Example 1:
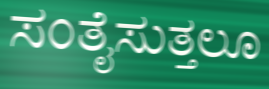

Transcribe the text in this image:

ಸಂತೈಸುತ್ತಲೂ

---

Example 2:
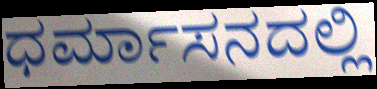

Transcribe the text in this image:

ಧರ್ಮಾಸನದಲ್ಲಿ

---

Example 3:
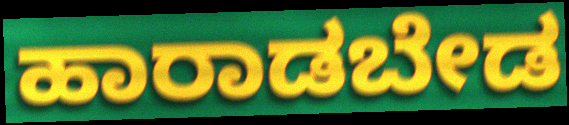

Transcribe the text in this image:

ಹಾರಾಡಬೇಡ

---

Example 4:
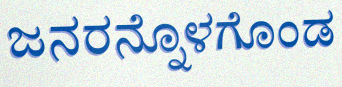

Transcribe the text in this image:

ಜನರನ್ನೊಳಗೊಂಡ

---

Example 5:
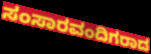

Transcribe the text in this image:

ಸಂಸಾರವಂದಿಗರಾದ